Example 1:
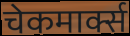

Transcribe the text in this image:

चेकमार्क्स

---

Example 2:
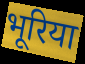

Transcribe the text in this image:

भूरिया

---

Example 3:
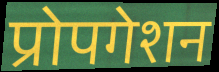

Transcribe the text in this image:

प्रोपगेशन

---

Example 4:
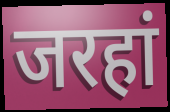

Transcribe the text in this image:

जरहां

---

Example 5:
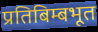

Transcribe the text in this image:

प्रतिबिम्बभूत